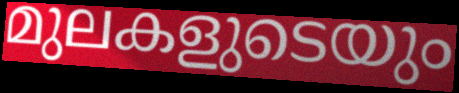
മുലകളുടെയും